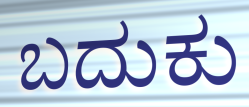
ಬದುಕು